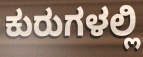
ಕುರುಗಳಲ್ಲಿ